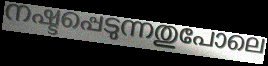
നഷ്ടപ്പെടുന്നതുപോലെ